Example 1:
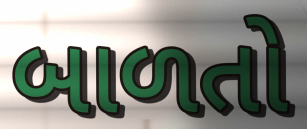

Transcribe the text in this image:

બાળતો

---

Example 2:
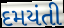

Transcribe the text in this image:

દમયંતી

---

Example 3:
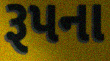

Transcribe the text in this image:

રૂપના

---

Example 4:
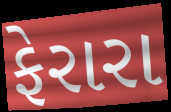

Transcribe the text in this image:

ફેરારા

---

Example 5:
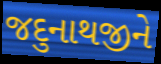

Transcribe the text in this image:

જદુનાથજીને